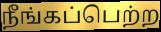
நீங்கப்பெற்ற